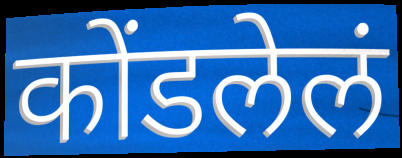
कोंडलेलं